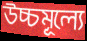
উচ্চমূল্যে